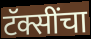
टॅक्सींचा